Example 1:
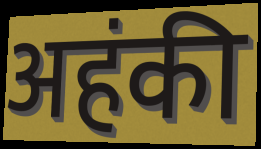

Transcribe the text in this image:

अहंकी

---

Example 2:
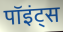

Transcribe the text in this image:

पॉइंट्स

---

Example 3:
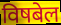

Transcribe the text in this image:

विषबेल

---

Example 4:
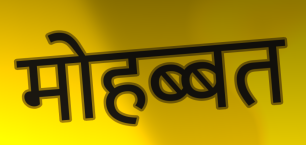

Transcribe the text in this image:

मोहब्बत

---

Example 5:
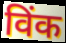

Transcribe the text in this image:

विंक